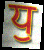
ਧੁ